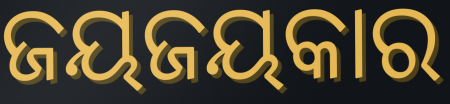
ଜୟଜୟକାର